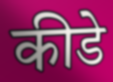
कीडे